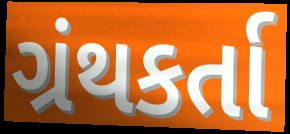
ગ્રંથકર્તા